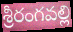
శ్రీరంగవల్లి